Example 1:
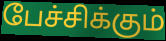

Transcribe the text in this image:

பேச்சிக்கும்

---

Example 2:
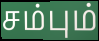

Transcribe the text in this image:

சம்பும்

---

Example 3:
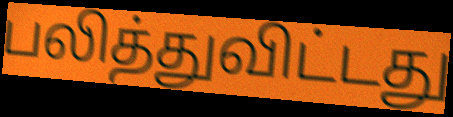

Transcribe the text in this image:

பலித்துவிட்டது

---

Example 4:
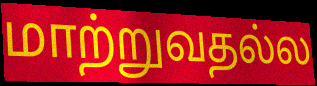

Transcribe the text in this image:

மாற்றுவதல்ல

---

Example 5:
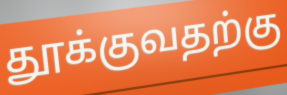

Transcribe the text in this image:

தூக்குவதற்கு